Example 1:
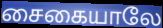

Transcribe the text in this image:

சைகையாலே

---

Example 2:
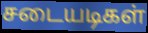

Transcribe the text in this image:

சடையடிகள்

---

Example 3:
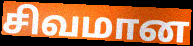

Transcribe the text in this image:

சிவமான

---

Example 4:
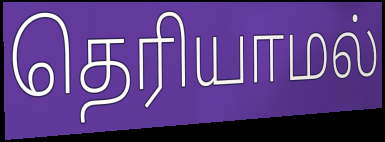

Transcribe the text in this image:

தெரியாமல்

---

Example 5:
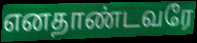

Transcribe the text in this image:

எனதாண்டவரே